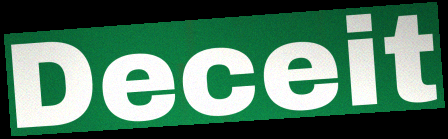
Deceit